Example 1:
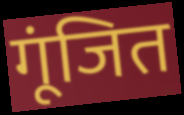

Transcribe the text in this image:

गूंजित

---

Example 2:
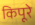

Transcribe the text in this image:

किपूरे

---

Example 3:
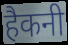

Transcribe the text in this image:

हैकनी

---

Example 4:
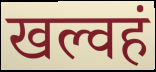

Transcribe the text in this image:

खल्वहं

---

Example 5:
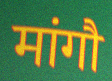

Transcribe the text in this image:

मांगौ